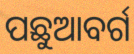
ପଛୁଆବର୍ଗ